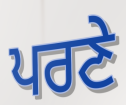
ਪਰਣੇ